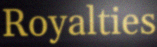
Royalties